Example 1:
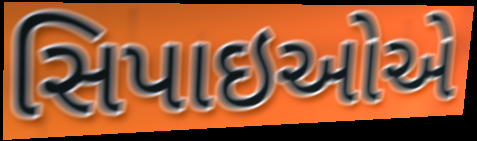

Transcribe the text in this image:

સિપાઇઓએ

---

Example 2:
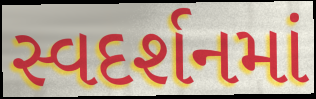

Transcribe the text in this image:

સ્વદર્શનમાં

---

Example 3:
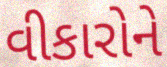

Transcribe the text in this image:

વીકારોને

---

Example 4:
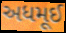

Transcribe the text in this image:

અધમૂઈ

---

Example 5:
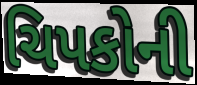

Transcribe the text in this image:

ચિપકોની